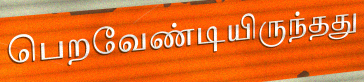
பெறவேண்டியிருந்தது